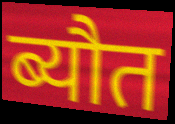
ब्यौत